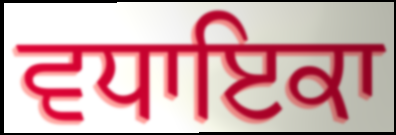
ਵਧਾਇਕਾ